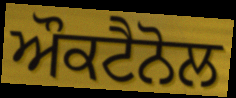
ਔਕਟੈਨੋਲ